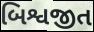
બિશ્વજીત